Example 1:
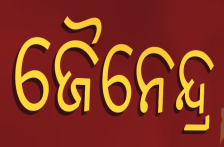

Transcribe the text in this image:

ଜୈନେନ୍ଦ୍ର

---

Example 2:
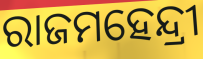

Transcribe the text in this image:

ରାଜମହେନ୍ଦ୍ରୀ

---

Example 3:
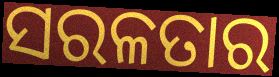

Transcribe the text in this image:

ସରଳତାର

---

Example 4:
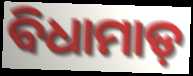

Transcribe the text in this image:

ବିଧାମାଡ଼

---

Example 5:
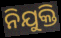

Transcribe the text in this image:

ନିଯୁକ୍ତି